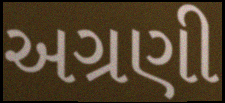
અગ્રણી